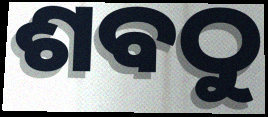
ଶବଠୁ